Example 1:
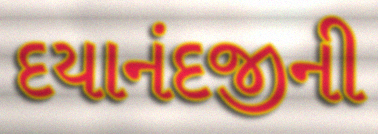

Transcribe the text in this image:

દયાનંદજીની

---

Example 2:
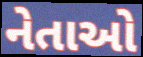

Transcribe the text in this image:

નેતાઓ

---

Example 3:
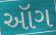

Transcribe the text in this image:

ઑગ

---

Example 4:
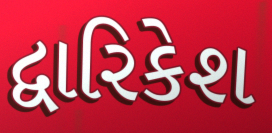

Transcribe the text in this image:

દ્વારિકેશ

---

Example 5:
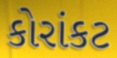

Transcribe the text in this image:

કોરાંકટ